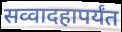
सव्वादहापर्यंत